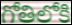
గోతిలోకి